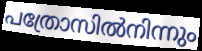
പത്രോസിൽനിന്നും